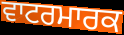
ਵਾਟਰਮਾਰਕ